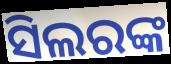
ସିଲରଙ୍କ